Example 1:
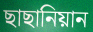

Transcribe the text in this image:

ছাছানিয়ান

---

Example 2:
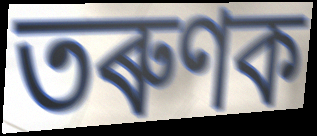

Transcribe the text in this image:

তৰুণক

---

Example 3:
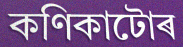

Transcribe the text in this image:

কণিকাটোৰ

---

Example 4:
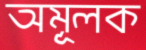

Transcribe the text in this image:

অমূলক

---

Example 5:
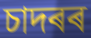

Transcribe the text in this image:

চাদৰৰ